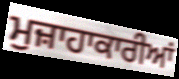
ਮੁਜ਼ਾਹਾਕਾਰੀਆਂ